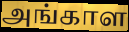
அங்காள